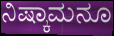
ನಿಷ್ಕಾಮನೂ